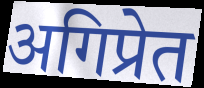
अगिप्रेत